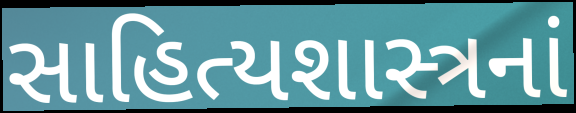
સાહિત્યશાસ્ત્રનાં